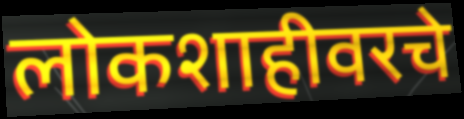
लोकशाहीवरचे